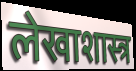
लेखाशास्त्र